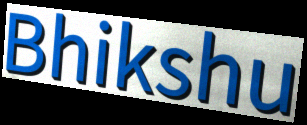
Bhikshu